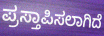
ಪ್ರಸ್ತಾಪಿಸಲಾಗಿದೆ